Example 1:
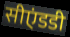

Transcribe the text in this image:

सीएंडडी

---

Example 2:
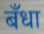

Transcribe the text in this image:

बँधा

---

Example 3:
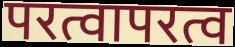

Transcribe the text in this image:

परत्वापरत्व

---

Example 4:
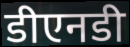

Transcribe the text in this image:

डीएनडी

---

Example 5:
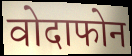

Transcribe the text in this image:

वोदाफोन